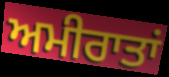
ਅਮੀਰਾਤਾਂ